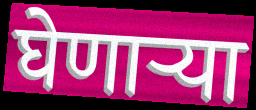
घेणाऱ्या